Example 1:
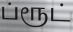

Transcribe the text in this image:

ப்ரூட்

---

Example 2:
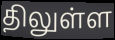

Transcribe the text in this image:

திலுள்ள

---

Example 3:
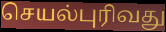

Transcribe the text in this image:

செயல்புரிவது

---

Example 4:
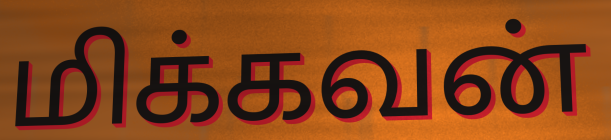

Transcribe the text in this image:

மிக்கவன்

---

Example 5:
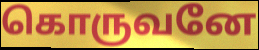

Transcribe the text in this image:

கொருவனே